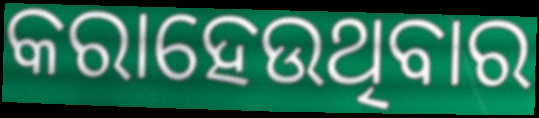
କରାହେଉଥିବାର